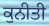
ਕੁਨੀਤੀ